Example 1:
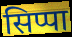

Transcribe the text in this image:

सिप्पा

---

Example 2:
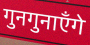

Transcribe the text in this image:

गुनगुनाएँगे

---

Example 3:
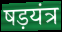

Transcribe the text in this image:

षड़यंत्र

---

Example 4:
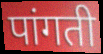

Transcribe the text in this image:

पांगती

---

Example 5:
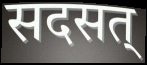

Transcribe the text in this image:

सदसत्